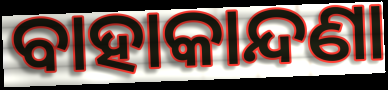
ବାହାକାନ୍ଦଣା